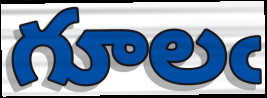
గూలఁ